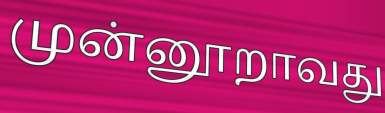
முன்னூறாவது